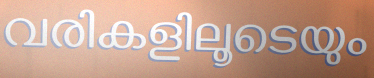
വരികളിലൂടെയും